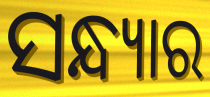
ସନ୍ଧ୍ୟାର